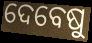
ଦେବେଷୁ